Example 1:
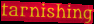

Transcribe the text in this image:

tarnishing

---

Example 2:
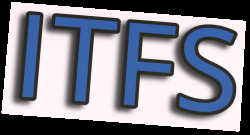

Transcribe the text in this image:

ITFS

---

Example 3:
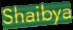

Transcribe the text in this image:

Shaibya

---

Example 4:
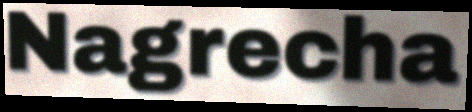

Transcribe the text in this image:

Nagrecha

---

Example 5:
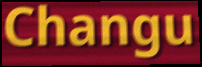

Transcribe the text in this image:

Changu